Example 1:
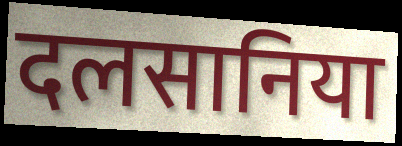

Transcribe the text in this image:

दलसानिया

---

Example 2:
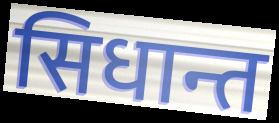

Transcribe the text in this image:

सिधान्त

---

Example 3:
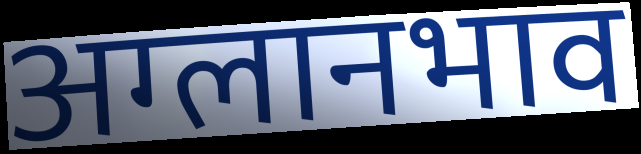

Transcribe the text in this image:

अग्लानभाव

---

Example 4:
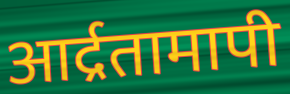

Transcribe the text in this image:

आर्द्रतामापी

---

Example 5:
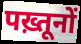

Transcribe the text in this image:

पख़्तूनों